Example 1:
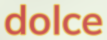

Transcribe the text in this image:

dolce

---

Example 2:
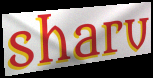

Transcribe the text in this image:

sharu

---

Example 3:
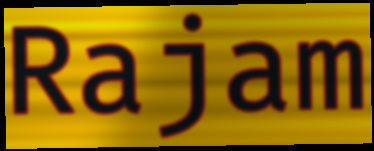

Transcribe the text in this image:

Rajam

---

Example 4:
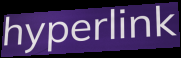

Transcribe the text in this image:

hyperlink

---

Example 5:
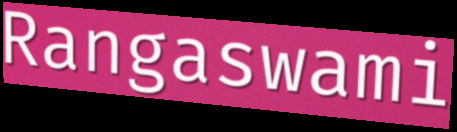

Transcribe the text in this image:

Rangaswami